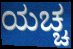
ಯಚ್ಚ